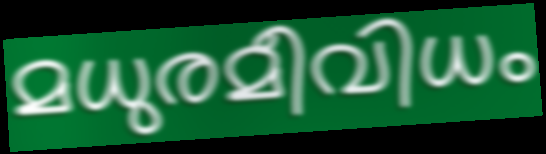
മധുരമീവിധം